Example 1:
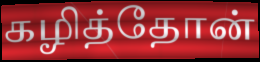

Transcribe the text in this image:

கழித்தோன்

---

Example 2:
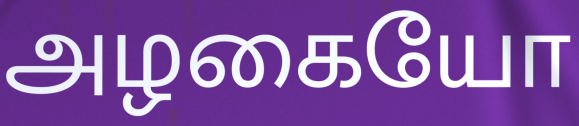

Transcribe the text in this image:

அழகையோ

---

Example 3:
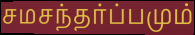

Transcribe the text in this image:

சமசந்தர்ப்பமும்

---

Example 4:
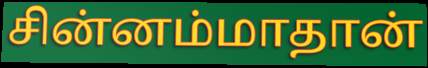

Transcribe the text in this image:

சின்னம்மாதான்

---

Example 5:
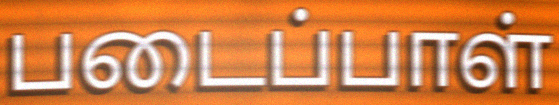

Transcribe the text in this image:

படைப்பாள்